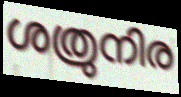
ശത്രുനിര